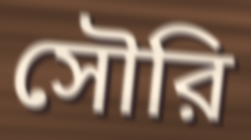
সৌরি